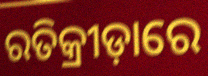
ରତିକ୍ରୀଡ଼ାରେ